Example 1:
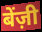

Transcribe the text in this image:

बेंज़ी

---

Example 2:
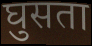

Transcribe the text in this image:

घुसता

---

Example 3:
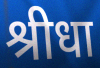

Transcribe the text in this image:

श्रीधा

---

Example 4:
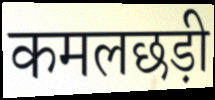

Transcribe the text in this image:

कमलछड़ी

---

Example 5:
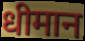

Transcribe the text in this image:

धीमान